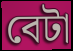
বেটা